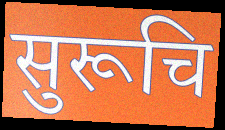
सुरूचि